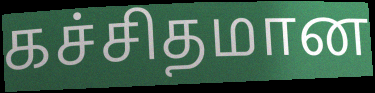
கச்சிதமான